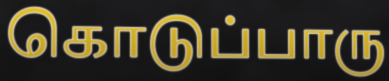
கொடுப்பாரு